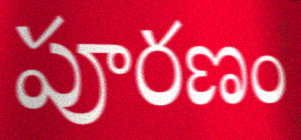
పూరణం